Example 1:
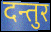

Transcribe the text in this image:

दन्तुर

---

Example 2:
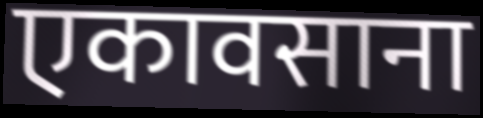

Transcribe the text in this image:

एकावसाना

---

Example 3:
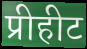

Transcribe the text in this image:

प्रीहीट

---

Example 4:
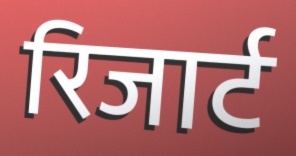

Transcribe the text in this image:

रिजार्ट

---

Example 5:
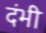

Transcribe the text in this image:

दंभी